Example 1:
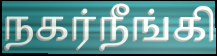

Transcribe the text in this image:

நகர்நீங்கி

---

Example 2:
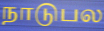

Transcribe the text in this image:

நாடுபல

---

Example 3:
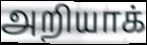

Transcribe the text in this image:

அறியாக்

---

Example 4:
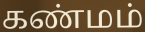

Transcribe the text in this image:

கண்மம்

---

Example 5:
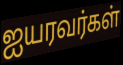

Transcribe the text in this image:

ஐயரவர்கள்